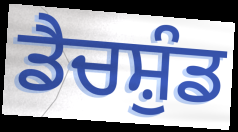
ਡੈਚਸ਼ੁੰਡ